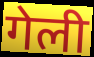
गेली